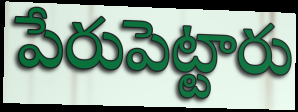
పేరుపెట్టారు